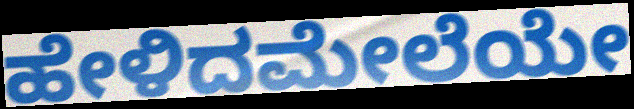
ಹೇಳಿದಮೇಲೆಯೇ